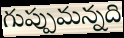
గుప్పుమన్నది